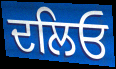
ਦਲਿਓ